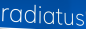
radiatus